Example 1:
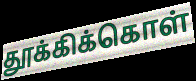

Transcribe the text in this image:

தூக்கிக்கொள்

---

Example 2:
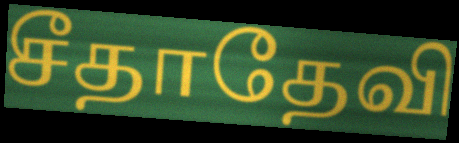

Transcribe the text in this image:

சீதாதேவி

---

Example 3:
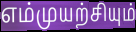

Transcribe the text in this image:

எம்முயற்சியும்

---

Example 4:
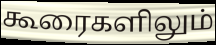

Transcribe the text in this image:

கூரைகளிலும்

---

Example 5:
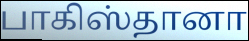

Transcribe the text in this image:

பாகிஸ்தானா